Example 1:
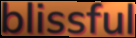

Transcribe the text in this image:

blissful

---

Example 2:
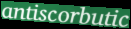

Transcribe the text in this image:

antiscorbutic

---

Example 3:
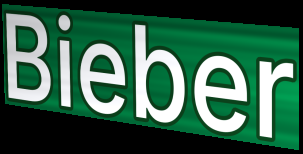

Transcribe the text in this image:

Bieber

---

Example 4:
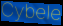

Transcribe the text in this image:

Cybele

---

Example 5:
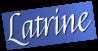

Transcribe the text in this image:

Latrine